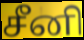
சீனி